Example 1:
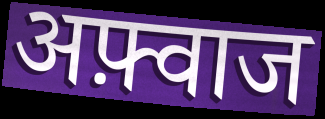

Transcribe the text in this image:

अफ़्वाज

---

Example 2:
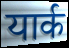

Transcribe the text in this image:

यार्क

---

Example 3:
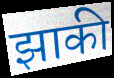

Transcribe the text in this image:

झाकी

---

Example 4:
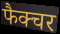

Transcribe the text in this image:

फैक्चर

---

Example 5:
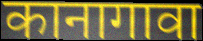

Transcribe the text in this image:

कानागावा